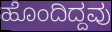
ಹೊಂದಿದ್ದವು